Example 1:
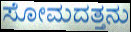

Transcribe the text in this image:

ಸೋಮದತ್ತನು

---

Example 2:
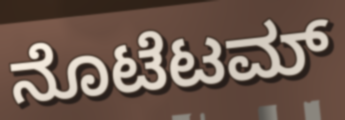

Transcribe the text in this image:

ನೊಟೆಟಮ್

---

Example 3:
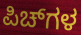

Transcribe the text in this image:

ಪಿಚ್‌ಗಳ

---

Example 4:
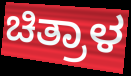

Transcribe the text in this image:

ಚಿತ್ರಾಳ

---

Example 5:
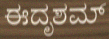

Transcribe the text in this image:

ಈದೃಶಮ್